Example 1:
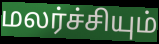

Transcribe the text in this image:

மலர்ச்சியும்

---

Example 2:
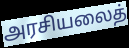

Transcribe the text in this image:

அரசியலைத்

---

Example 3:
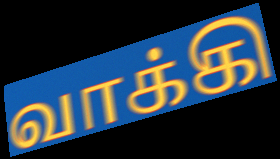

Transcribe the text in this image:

வாக்கி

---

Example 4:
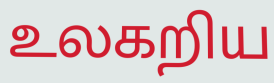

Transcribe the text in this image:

உலகறிய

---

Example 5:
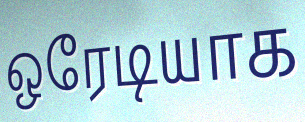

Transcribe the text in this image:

ஒரேடியாக